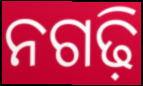
ନଗଢ଼ି